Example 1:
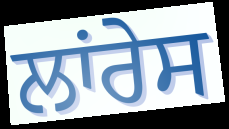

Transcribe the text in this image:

ਲਾਂਰੇਸ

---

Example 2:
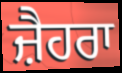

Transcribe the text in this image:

ਜ਼ੈਹਰਾ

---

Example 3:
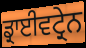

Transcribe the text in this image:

ਡ੍ਰਾਈਵਟ੍ਰੇਨ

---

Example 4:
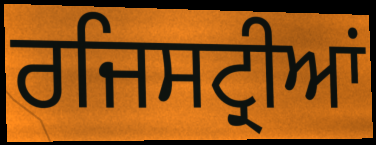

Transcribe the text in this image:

ਰਜਿਸਟ੍ਰੀਆਂ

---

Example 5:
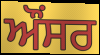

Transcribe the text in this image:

ਔਂਸਰ